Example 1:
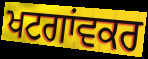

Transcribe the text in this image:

ਖਟਗਾਂਵਕਰ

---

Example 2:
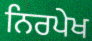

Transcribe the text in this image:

ਨਿਰਪੇਖ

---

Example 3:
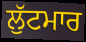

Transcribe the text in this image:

ਲੁੱਟਮਾਰ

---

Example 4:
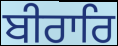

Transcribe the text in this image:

ਬੀਰਾਰਿ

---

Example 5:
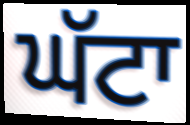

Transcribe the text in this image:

ਘੱਟਾ